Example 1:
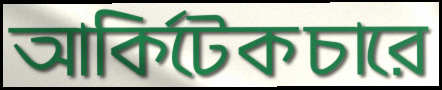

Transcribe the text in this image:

আর্কিটেকচারে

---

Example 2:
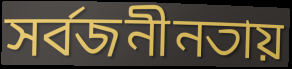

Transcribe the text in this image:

সর্বজনীনতায়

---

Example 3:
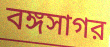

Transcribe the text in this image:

বঙ্গসাগর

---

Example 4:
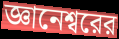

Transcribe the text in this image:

জ্ঞানেশ্বরের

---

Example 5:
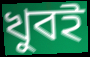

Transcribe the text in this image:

খুবই